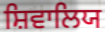
ਸ਼ਿਵਾਲਿਯ